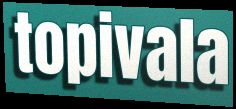
topivala